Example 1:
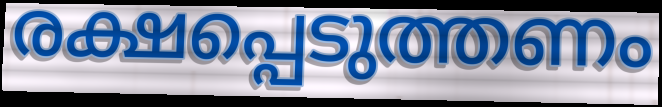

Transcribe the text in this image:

രക്ഷപ്പെടുത്തണം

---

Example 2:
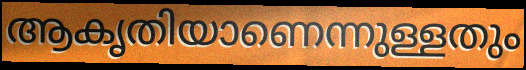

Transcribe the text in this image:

ആകൃതിയാണെന്നുള്ളതും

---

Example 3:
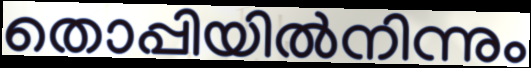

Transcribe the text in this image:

തൊപ്പിയിൽനിന്നും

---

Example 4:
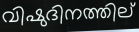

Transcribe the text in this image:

വിഷുദിനത്തില്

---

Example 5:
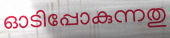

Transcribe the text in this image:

ഓടിപ്പോകുന്നതു